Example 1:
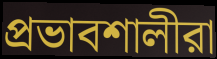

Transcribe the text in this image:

প্রভাবশালীরা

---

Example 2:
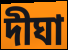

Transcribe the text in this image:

দীঘা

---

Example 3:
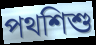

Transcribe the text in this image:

পথশিশু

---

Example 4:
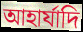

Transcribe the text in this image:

আহার্যাদি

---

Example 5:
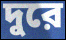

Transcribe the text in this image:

দুরে